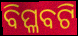
ବିପ୍ଳବଟି